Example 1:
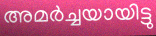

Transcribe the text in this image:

അമർച്ചയായിട്ടു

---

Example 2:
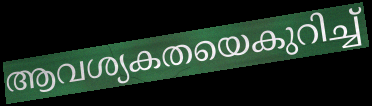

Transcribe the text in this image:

ആവശ്യകതയെകുറിച്ച്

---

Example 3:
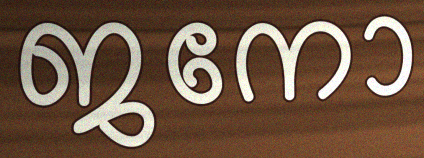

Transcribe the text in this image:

ജനോ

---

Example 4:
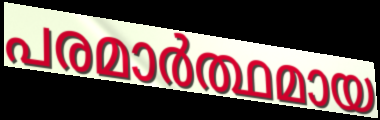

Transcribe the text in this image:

പരമാർത്ഥമായ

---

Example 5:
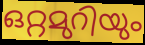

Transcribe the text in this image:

ഒറ്റമുറിയും